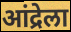
आंद्रेला